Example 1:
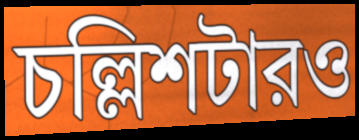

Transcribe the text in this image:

চল্লিশটারও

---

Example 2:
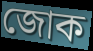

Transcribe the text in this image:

জোক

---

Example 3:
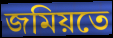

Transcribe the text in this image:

জমিয়তে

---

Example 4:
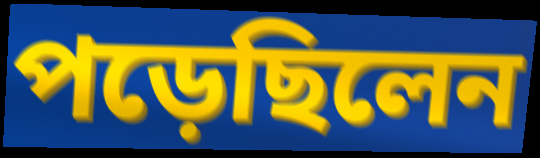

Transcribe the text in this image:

পড়েছিলেন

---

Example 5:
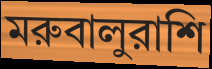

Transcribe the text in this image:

মরুবালুরাশি